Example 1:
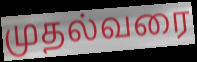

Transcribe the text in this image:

முதல்வரை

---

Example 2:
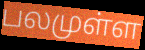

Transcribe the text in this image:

பலமுள்ள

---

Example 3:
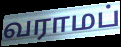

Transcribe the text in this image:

வராமப்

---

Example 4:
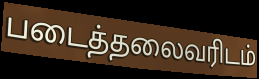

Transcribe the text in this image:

படைத்தலைவரிடம்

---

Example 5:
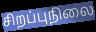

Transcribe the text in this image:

சிறப்புநிலை